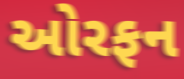
ઓરફન